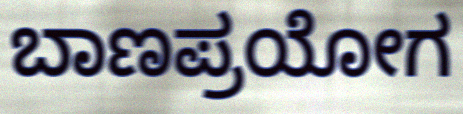
ಬಾಣಪ್ರಯೋಗ